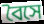
বৈসে